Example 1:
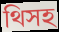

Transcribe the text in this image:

থিসহ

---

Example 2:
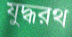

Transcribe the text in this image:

যুদ্ধরথ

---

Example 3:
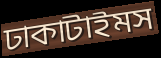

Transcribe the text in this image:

ঢাকাটাইমস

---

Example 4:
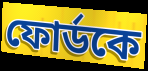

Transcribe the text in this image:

ফোর্ডকে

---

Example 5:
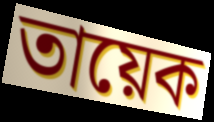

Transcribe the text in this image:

তায়েক